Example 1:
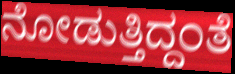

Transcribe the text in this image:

ನೋಡುತ್ತಿದ್ದಂತೆ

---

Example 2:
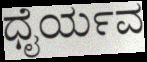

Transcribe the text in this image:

ಧೈರ್ಯವ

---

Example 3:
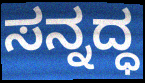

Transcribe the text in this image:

ಸನ್ನದ್ಧ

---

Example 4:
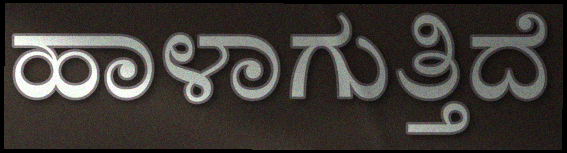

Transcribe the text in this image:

ಹಾಳಾಗುತ್ತಿದೆ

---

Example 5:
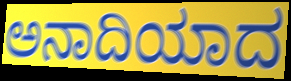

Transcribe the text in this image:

ಅನಾದಿಯಾದ